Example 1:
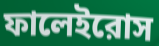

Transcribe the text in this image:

ফালেইরোস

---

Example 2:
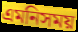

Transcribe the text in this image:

এমনিসময়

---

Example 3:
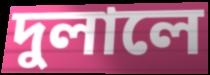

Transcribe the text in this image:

দুলালে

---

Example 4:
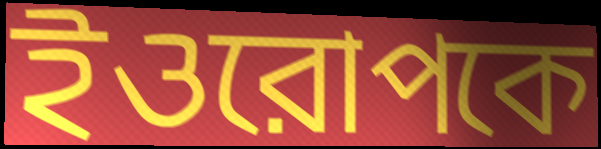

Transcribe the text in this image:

ইওরোপকে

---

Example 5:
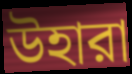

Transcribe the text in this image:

উহারা